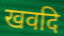
खवदि